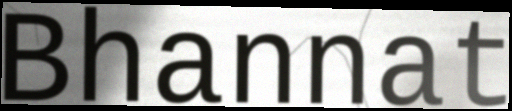
Bhannat